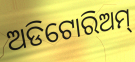
ଅଡିଟୋରିଅମ୍